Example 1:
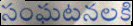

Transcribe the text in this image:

సంఘటనలకి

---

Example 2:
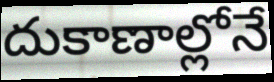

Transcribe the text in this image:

దుకాణాల్లోనే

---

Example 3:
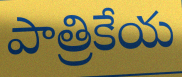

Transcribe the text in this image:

పాత్రికేయ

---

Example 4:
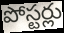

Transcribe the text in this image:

పోస్టర్లు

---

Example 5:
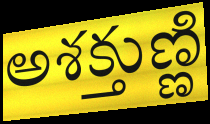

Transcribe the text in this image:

అశక్తుణ్ణి